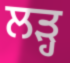
ਲੜ੍ਹ